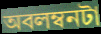
অবলম্বনটা